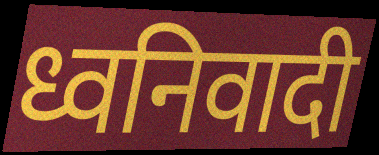
ध्वनिवादी